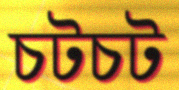
চটচট